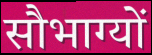
सौभाग्यों